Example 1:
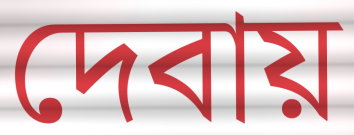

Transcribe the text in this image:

দেবায়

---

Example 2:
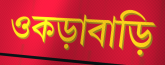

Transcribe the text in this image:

ওকড়াবাড়ি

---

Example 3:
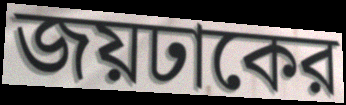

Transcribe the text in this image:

জয়ঢাকের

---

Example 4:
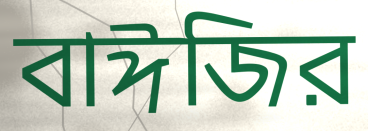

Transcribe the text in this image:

বাঈজির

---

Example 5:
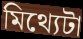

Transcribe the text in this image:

মিথ্যেটা